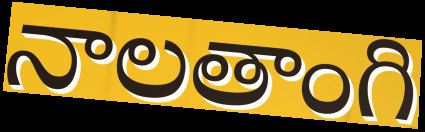
నాలతాంగి